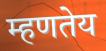
म्हणतेय